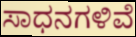
ಸಾಧನಗಳಿವೆ